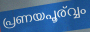
പ്രണയപൂര്വ്വം